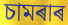
চামৰাৰ